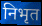
निभृत